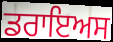
ਡਰਾਇਅਸ